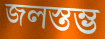
জলস্তম্ভ